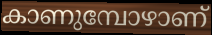
കാണുമ്പോഴാണ്